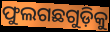
ଫୁଲଗଛଗୁଡ଼ିକୁ